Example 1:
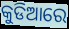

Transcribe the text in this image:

କୁଡିଆରେ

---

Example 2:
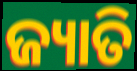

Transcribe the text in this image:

ଜ୍ୟାତି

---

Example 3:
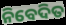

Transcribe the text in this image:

ନିବେଦିତ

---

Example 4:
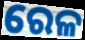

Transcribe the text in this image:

ରେଳ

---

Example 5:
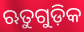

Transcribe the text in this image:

ଋତୁଗୁଡ଼ିକ